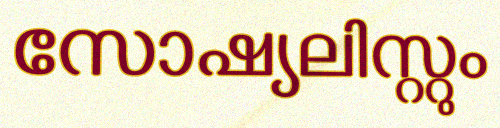
സോഷ്യലിസ്റ്റും